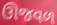
ઊજવળ